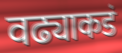
वढ्याकडं